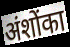
अंशोंका